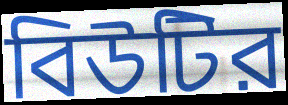
বিউটির